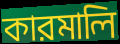
কারমালি